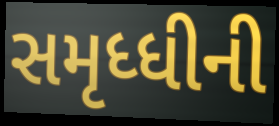
સમૃધ્ધીની